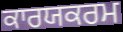
ਕਾਰਯਕਰਮ